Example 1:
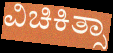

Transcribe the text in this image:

ವಿಚಿಕಿತ್ಸಾ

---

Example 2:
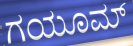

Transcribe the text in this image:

ಗಯೂಮ್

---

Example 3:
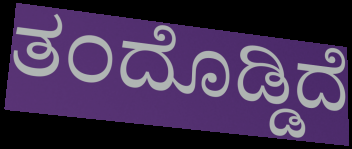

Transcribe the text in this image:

ತಂದೊಡ್ಡಿದೆ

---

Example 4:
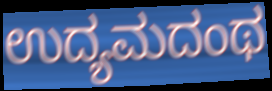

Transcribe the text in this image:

ಉದ್ಯಮದಂಥ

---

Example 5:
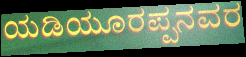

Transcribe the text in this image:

ಯಡಿಯೂರಪ್ಪನವರ